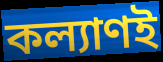
কল্যাণই